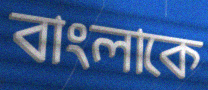
বাংলাকে